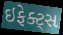
ઇફેક્ટ્સ